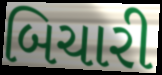
બિચારી